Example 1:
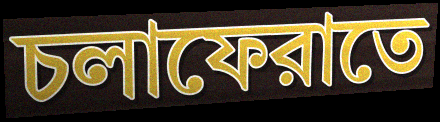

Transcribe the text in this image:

চলাফেরাতে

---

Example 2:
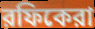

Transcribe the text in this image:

রফিকেরা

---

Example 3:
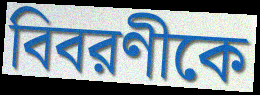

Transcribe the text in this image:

বিবরণীকে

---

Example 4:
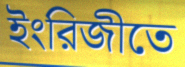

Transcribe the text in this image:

ইংরিজীতে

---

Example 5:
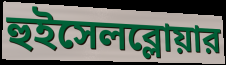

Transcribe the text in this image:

হুইসেলব্লোয়ার